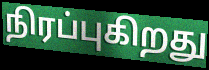
நிரப்புகிறது